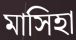
মাসিহা